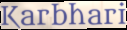
Karbhari